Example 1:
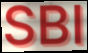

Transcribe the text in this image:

SBI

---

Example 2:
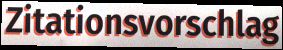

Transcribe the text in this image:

Zitationsvorschlag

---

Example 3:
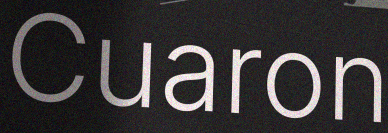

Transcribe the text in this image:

Cuaron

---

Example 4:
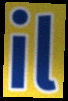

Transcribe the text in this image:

il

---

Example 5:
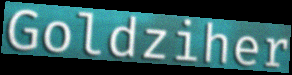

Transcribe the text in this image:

Goldziher